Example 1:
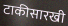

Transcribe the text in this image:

टाकीसारखी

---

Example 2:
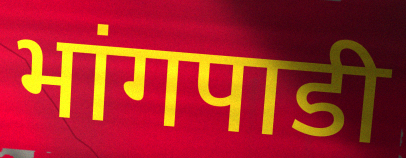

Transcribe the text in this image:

भांगपाडी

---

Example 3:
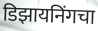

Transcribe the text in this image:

डिझायनिंगचा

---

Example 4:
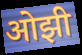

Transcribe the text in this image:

ओझी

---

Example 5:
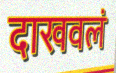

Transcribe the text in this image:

दाखवलं